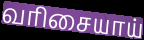
வரிசையாய்